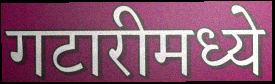
गटारीमध्ये